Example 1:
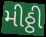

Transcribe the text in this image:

મીઠ્ઠી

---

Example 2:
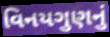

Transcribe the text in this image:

વિનયગુણનું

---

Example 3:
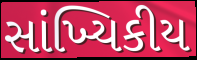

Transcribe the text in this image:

સાંખ્યિકીય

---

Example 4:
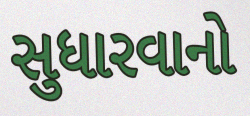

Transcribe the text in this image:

સુધારવાનો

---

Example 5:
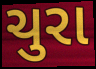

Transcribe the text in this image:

ચુરા